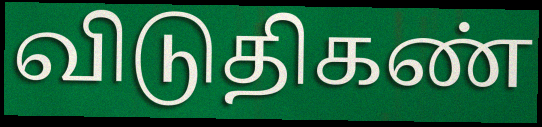
விடுதிகண்